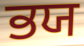
ਭਯ